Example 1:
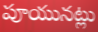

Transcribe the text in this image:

పూయునట్లు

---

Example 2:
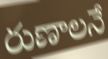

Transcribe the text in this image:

రుణాలనే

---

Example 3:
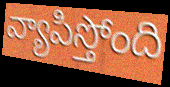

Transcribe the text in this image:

వ్యాపిస్తోంది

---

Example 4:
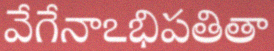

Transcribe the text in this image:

వేగేనాఽభిపతితా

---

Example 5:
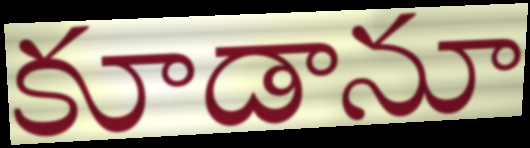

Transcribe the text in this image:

కూడానూ